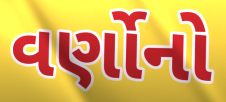
વર્ણોનો